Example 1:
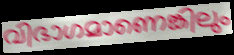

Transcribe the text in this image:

വിഭാഗമാണെങ്കിലും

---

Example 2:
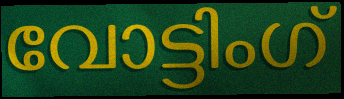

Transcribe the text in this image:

വോട്ടിംഗ്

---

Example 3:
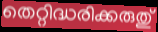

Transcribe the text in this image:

തെറ്റിദ്ധരിക്കരുതു്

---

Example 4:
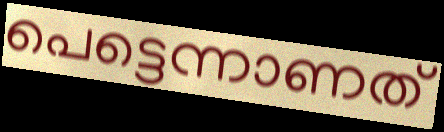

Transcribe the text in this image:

പെട്ടെന്നാണത്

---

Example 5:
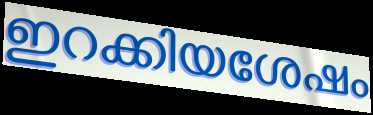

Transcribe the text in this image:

ഇറക്കിയശേഷം